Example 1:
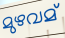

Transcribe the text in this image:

മുഴവമ്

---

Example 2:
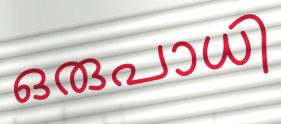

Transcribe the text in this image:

ഒരുപാധി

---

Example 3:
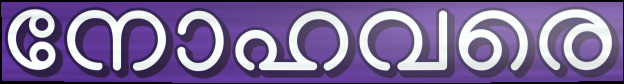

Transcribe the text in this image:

നോഹവരെ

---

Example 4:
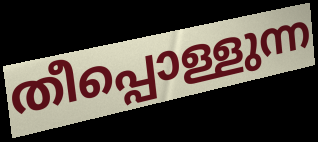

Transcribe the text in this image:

തീപ്പൊള്ളുന്ന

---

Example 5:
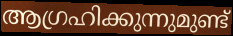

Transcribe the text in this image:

ആഗ്രഹിക്കുന്നുമുണ്ട്